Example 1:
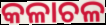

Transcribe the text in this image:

କଳାଚଳ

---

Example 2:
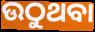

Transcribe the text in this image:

ଉଠୁଥବା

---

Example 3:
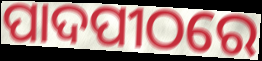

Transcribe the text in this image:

ପାଦପୀଠରେ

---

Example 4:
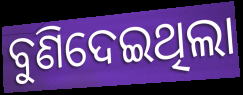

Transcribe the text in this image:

ବୁଣିଦେଇଥିଲା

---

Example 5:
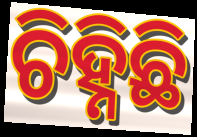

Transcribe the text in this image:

ଚିହ୍ନିଛି